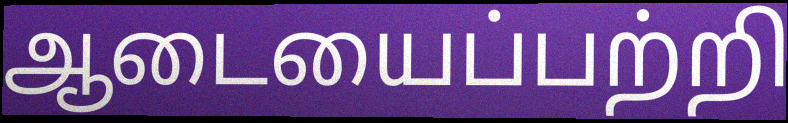
ஆடையைப்பற்றி